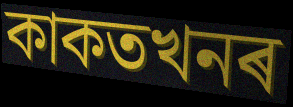
কাকতখনৰ